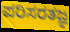
ಪರಿಸರತಜ್ಞ